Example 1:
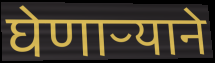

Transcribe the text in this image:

घेणाऱ्याने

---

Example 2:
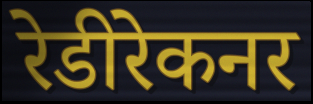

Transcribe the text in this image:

रेडीरेकनर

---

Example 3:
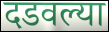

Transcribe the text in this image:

दडवल्या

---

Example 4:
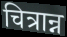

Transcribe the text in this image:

चित्रान्न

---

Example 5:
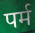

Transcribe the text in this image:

पर्म